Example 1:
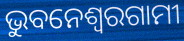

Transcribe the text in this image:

ଭୁବନେଶ୍ୱରଗାମୀ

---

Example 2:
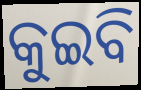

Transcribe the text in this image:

କୁଇବି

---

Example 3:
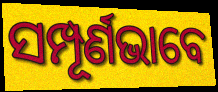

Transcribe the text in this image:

ସମ୍ପୂର୍ଣଭାବେ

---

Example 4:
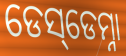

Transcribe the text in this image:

ଡେସ୍‌ଡେମ୍ନା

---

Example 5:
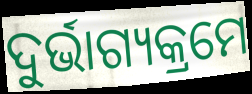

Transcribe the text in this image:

ଦୁର୍ଭାଗ୍ୟକ୍ରମେ